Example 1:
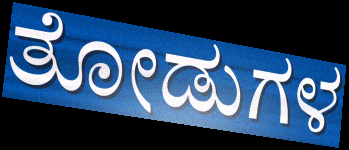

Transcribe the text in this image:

ತೋಡುಗಳ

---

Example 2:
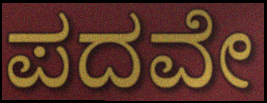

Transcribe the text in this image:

ಪದವೇ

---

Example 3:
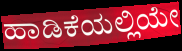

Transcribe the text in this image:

ಹಾಡಿಕೆಯಲ್ಲಿಯೇ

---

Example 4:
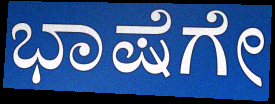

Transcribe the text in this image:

ಭಾಷೆಗೇ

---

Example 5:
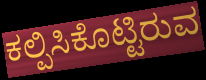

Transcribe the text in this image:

ಕಲ್ಪಿಸಿಕೊಟ್ಟಿರುವ